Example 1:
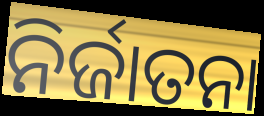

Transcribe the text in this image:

ନିର୍ଜାତନା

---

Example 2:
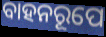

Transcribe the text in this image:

ବାହନରୂପେ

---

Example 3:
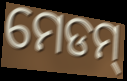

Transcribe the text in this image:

ମେଡମ୍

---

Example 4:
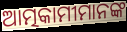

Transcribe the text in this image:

ଆତ୍ମକାମୀମାନଙ୍କ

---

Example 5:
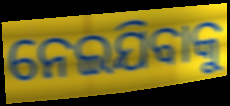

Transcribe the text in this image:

ନେଇଯିବାକୁ